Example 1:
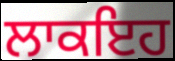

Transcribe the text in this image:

ਲਾਕਇਹ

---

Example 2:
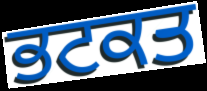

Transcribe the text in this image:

ਭਟਕਤ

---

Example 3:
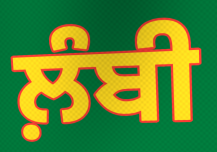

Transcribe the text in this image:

ਲ਼ੰਬੀ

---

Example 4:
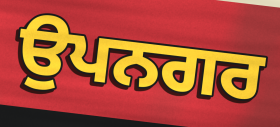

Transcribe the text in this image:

ਉਪਨਗਰ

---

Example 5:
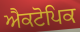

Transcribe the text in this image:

ਐਕਟੋਪਿਕ